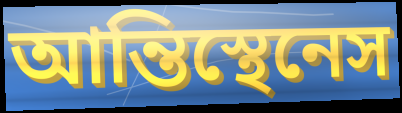
আন্তিস্থেনেস